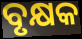
ବୃକ୍ଷକ